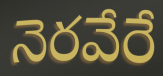
నెరవేరే